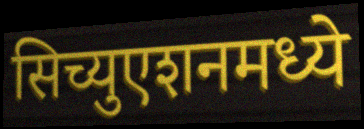
सिच्युएशनमध्ये